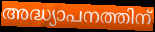
അദ്ധ്യാപനത്തിന്